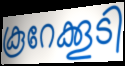
കൂറേക്കൂടി